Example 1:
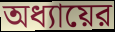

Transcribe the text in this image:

অধ্যায়ের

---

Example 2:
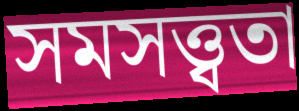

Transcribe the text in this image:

সমসত্ত্বতা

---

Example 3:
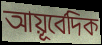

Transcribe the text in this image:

আয়ূর্বেদিক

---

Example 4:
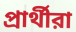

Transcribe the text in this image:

প্রার্থীরা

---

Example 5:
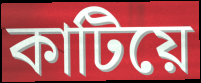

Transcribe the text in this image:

কাটিয়ে